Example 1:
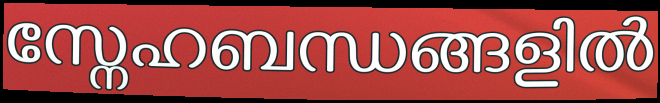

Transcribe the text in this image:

സ്നേഹബന്ധങ്ങളിൽ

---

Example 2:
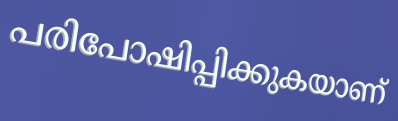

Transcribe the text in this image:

പരിപോഷിപ്പിക്കുകയാണ്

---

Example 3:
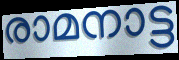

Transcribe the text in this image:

രാമനാട്ട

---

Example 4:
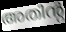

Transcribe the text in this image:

അതിന്റ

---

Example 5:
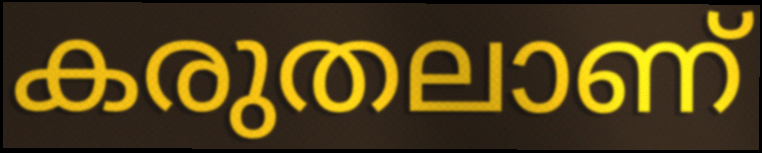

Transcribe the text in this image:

കരുതലാണ്